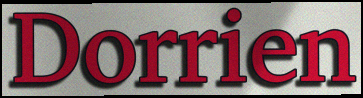
Dorrien